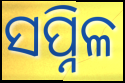
ସପ୍ନିଳ